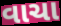
વાચા